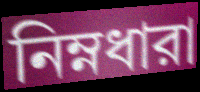
নিম্নধারা